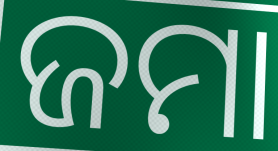
ଜମା